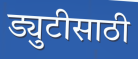
ड्युटीसाठी